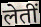
लेतीं